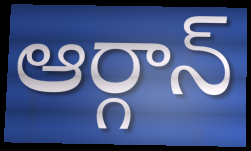
ఆర్గాన్